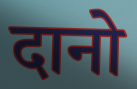
दानो